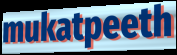
mukatpeeth